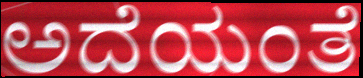
ಅದೆಯಂತೆ